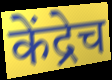
केंद्रेच